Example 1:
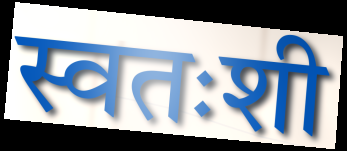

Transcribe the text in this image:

स्वतःशी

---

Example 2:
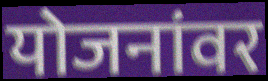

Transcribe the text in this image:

योजनांवर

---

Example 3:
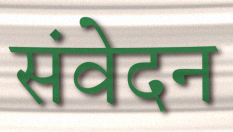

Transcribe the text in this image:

संवेदन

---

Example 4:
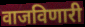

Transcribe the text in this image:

वाजविणारी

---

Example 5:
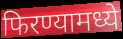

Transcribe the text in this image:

फिरण्यामध्ये